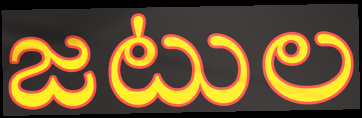
జటుల